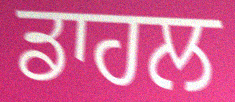
ਡਾਹਲ